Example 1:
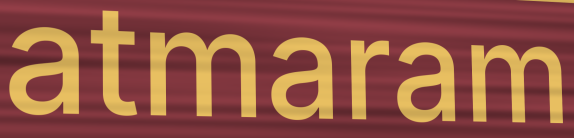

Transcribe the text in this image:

atmaram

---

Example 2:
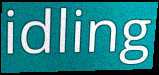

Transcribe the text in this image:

idling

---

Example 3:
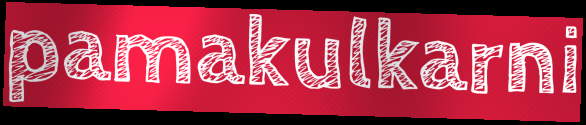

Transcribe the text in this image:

pamakulkarni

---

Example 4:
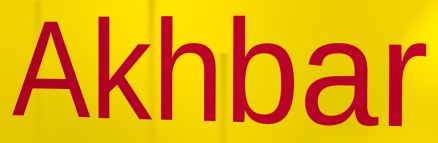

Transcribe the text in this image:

Akhbar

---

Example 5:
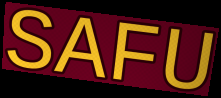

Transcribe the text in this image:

SAFU